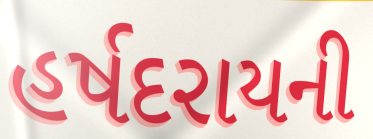
હર્ષદરાયની